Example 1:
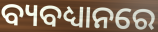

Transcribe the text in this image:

ବ୍ୟବଧ୍ୟାନରେ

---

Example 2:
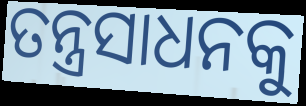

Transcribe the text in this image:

ତନ୍ତ୍ରସାଧନକୁ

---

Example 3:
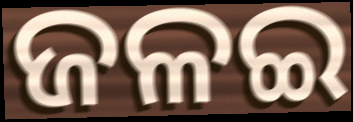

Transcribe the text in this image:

ଜଳଇ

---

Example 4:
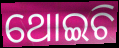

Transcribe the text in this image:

ଥୋଇଚି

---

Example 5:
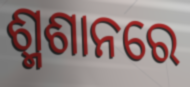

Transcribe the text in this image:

ଶ୍ମଶାନରେ